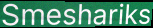
Smeshariks